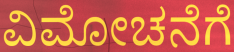
ವಿಮೋಚನೆಗೆ